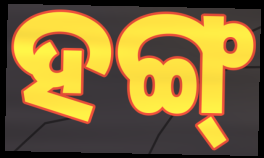
ହଙ୍ଗ୍